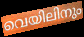
വെയിലിനും